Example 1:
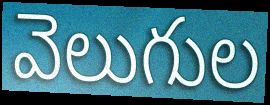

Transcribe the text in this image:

వెలుగుల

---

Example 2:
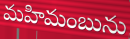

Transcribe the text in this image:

మహిమంబును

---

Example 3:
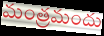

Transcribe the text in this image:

మంత్రమందు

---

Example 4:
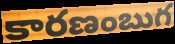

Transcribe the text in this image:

కారణంబుగ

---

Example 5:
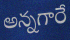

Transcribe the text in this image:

అన్నగారే